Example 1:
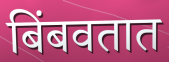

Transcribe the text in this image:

बिंबवतात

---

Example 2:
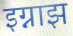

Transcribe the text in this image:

इग्नाझ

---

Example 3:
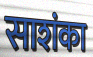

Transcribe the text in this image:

साशंका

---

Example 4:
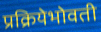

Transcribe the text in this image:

प्रक्रियेभोवती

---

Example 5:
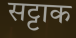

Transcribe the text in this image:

सट्टाक